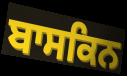
ਬਾਸਕਿਨ